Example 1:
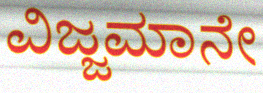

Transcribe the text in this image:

ವಿಜ್ಜಮಾನೇ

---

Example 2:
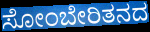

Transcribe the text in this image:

ಸೋಂಬೇರಿತನದ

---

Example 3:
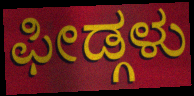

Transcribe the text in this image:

ಫೀಡ್ಗಳು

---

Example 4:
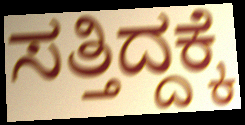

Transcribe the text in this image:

ಸತ್ತಿದ್ದಕ್ಕೆ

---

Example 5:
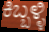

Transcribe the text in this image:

ಕಿಬ್ಬಳ್ಳಿ